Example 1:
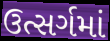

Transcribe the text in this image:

ઉત્સર્ગમાં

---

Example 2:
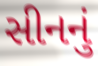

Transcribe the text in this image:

સીનનું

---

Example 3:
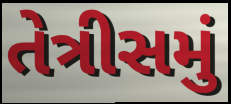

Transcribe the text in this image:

તેત્રીસમું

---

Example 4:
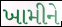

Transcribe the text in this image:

ખામીને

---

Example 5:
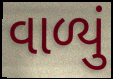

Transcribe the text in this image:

વાળ્યું